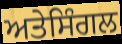
ਅਤੇਸਿੰਗਲ